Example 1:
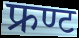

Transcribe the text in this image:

फ्रण्ट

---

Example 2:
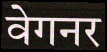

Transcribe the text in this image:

वेगनर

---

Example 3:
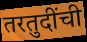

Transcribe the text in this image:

तरतुदींची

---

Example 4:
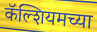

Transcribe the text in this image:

कॅल्शियमच्या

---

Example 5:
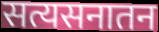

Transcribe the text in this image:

सत्यसनातन